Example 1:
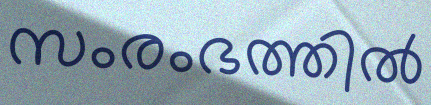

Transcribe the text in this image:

സംരംഭത്തിൽ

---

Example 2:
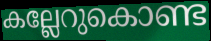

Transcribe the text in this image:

കല്ലേറുകൊണ്ട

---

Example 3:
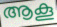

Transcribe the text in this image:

ആകൂ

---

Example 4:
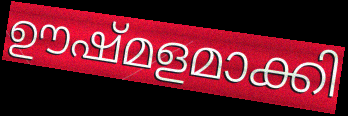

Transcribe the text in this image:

ഊഷ്മളമാക്കി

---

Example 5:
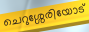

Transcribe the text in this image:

ചെറുശ്ശേരിയോട്